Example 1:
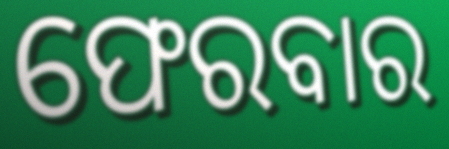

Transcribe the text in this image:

ଫେରବାର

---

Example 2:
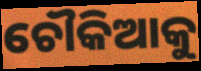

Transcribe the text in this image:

ଚୌକିଆକୁ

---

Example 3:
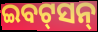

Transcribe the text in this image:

ଇବଟ୍‌ସନ୍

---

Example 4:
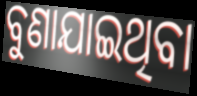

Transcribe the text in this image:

ବୁଣାଯାଇଥିବା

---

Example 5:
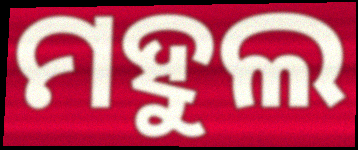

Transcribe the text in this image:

ମହୁଲ